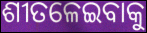
ଶୀତଳେଇବାକୁ